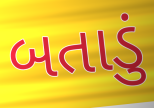
બતાડું